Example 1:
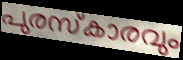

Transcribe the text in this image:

പുരസ്കാരവും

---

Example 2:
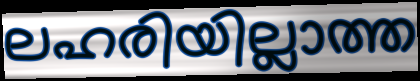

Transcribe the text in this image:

ലഹരിയില്ലാത്ത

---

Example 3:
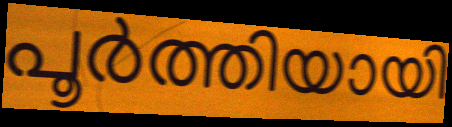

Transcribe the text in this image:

പൂർത്തിയായി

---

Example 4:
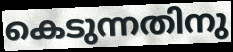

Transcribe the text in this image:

കെടുന്നതിനു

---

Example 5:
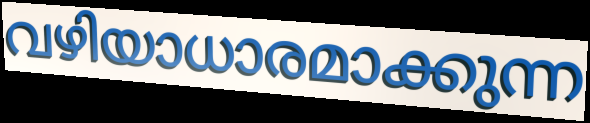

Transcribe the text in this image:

വഴിയാധാരമാക്കുന്ന